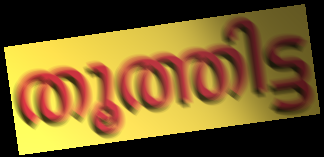
തൂത്തിട്ട